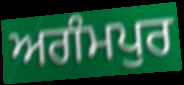
ਅਗੰਮਪੁਰ